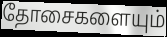
தோசைகளையும்